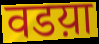
वडय़ा